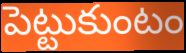
పెట్టుకుంటం